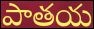
పాతయ